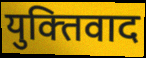
युक्‍तिवाद